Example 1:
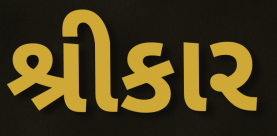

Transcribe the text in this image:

શ્રીકાર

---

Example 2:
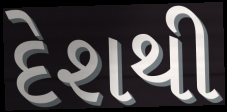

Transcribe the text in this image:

દેશથી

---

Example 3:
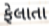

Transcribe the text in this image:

ફેલાતા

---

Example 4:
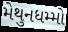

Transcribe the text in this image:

મેથુનધમ્મો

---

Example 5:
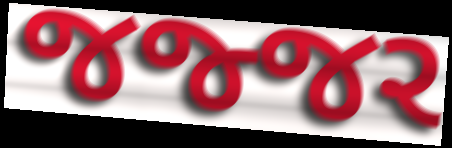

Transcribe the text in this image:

જજ્જર